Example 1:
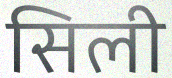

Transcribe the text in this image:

सिली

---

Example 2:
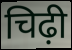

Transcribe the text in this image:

चिढ़ी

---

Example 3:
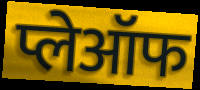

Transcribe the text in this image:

प्लेऑफ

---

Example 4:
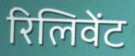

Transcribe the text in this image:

रिलिवेंट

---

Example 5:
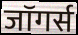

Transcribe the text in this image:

जॉगर्स